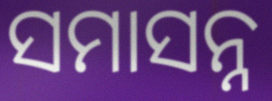
ସମାସନ୍ନ